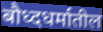
बौध्दधर्मातील